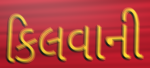
કિલવાની